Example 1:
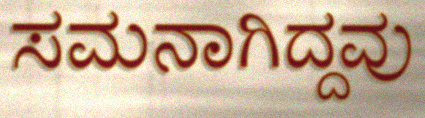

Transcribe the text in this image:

ಸಮನಾಗಿದ್ದವು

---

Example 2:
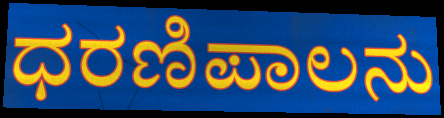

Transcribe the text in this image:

ಧರಣಿಪಾಲನು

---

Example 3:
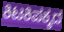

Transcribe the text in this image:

ಕಿಟಕಿಪಕ್ಕದ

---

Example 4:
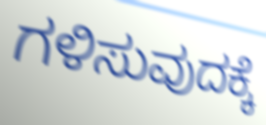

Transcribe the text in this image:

ಗಳಿಸುವುದಕ್ಕೆ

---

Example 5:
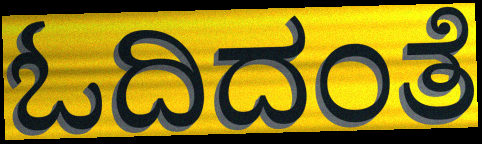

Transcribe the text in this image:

ಓದಿದಂತೆ